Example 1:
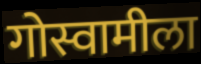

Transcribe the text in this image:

गोस्वामीला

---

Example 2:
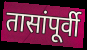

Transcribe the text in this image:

तासांपूर्वी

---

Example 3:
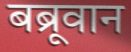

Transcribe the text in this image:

बब्रूवान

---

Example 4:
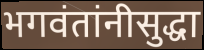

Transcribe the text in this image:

भगवंतांनीसुद्धा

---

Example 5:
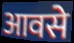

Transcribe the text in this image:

आवसे